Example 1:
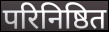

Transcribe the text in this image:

परिनिष्ठित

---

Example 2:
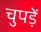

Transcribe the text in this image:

चुपड़ें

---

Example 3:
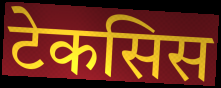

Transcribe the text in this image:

टेकसिस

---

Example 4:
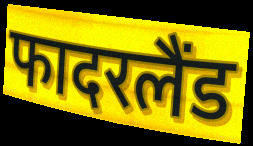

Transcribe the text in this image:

फादरलैंड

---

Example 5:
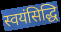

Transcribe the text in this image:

स्वयंसिद्धि